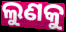
ଲୁଣକୁ